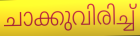
ചാക്കുവിരിച്ച്